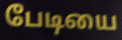
பேடியை